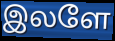
இலளே